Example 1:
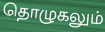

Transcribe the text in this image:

தொழுகலும்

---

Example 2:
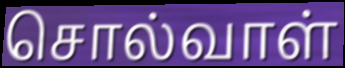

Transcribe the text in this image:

சொல்வாள்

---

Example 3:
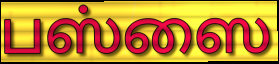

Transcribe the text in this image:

பஸ்ஸை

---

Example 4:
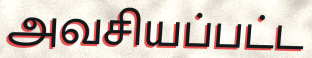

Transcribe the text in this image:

அவசியப்பட்ட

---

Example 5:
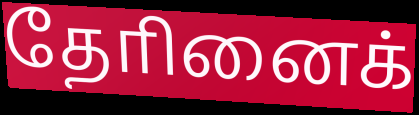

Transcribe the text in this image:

தேரினைக்